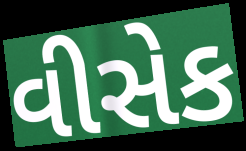
વીસેક